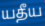
யதீய